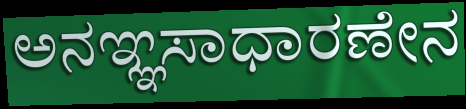
ಅನಞ್ಞಸಾಧಾರಣೇನ